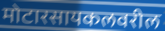
मोटारसायकलवरील